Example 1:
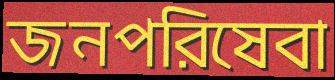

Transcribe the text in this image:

জনপরিষেবা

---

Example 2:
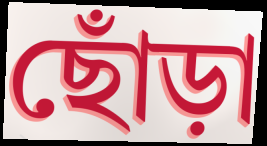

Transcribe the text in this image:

ছোঁড়া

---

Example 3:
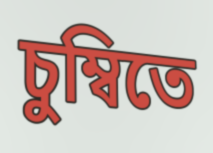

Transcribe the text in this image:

চুম্বিতে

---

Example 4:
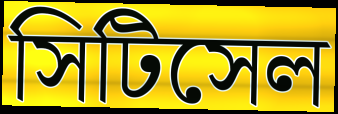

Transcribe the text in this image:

সিটিসেল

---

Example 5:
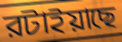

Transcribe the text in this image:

রটাইয়াছে